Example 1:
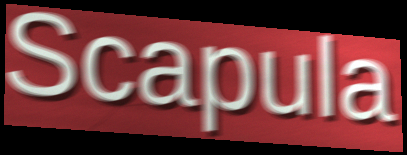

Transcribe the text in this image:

Scapula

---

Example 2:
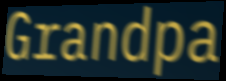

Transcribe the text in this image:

Grandpa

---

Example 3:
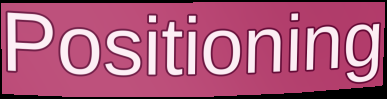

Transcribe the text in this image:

Positioning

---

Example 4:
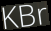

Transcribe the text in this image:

KBr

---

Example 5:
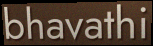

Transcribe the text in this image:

bhavathi